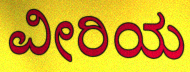
ವೀರಿಯ